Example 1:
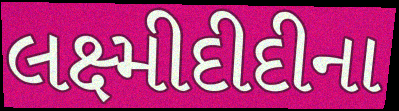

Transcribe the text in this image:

લક્ષ્મીદીદીના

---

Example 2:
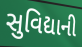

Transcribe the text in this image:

સુવિદ્યાની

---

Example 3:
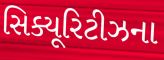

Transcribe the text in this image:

સિક્યૂરિટીઝના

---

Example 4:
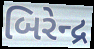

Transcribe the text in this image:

બિરેન્દ્ર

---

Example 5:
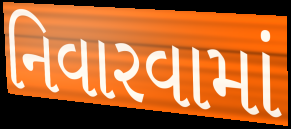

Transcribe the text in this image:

નિવારવામાં